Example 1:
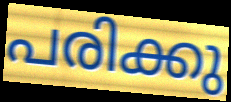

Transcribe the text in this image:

പരിക്കു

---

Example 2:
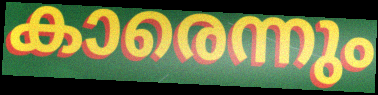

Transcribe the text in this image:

കാരെന്നും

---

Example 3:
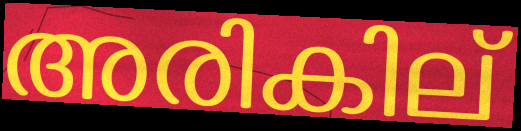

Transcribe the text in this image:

അരികില്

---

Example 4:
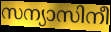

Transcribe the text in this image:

സന്യാസിനീ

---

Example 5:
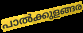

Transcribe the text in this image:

പാൽക്കുളങ്ങര